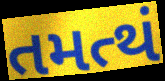
તમત્થં